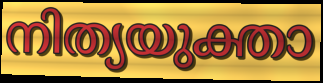
നിത്യയുക്താ